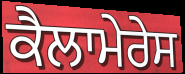
ਕੈਲਾਮੇਰੇਸ